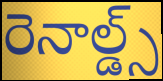
రెనాల్డ్స్